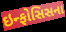
ઇન્ફોસિસના